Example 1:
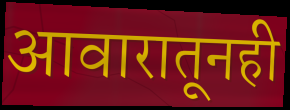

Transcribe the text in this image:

आवारातूनही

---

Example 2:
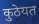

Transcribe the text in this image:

कुठेयत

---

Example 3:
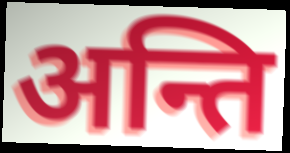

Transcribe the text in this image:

अन्ति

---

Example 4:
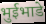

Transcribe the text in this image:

भुईभाडे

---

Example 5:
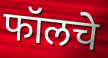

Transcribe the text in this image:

फॉलचे